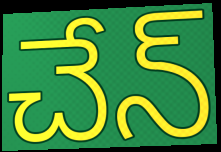
చేన్